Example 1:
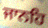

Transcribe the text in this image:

ਜਾਨਹਿ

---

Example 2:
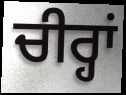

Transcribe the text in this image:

ਚੀਰ੍ਹਾਂ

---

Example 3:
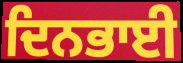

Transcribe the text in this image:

ਦਿਨਭਾਈ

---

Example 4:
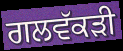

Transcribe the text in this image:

ਗਲਵੱਕੜੀ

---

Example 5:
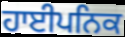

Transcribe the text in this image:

ਹਾਈਪਨਿਕ